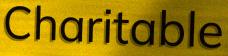
Charitable